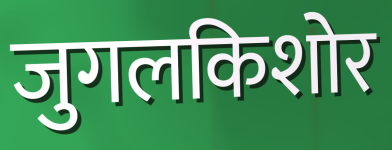
जुगलकिशोर